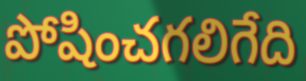
పోషించగలిగేది